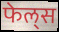
फेल्स